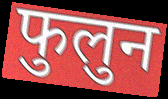
फुलुन